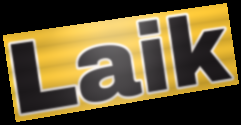
Laik